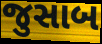
જુસાબ